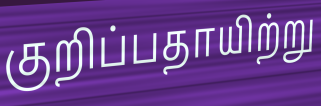
குறிப்பதாயிற்று